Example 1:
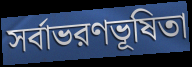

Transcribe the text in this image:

সর্বাভরণভূষিতা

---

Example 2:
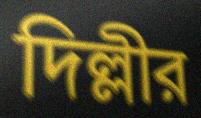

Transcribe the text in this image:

দিল্লীর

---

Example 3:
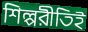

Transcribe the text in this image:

শিল্পরীতিই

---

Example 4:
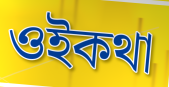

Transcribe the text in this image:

ওইকথা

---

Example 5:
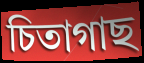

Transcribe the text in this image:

চিতাগাছ